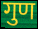
गुण